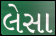
લેસા